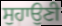
ਸੁਹਾਉਣੀ